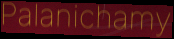
Palanichamy